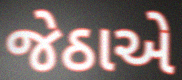
જેઠાએ